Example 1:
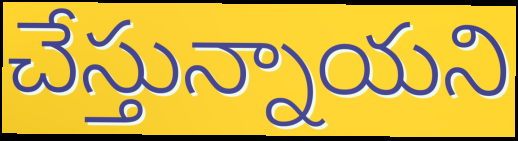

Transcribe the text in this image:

చేస్తున్నాయని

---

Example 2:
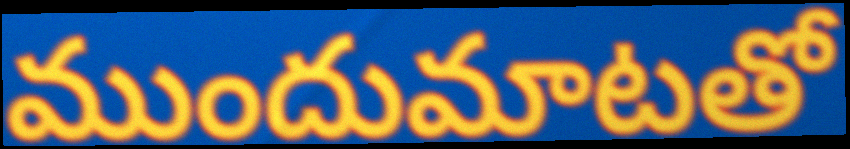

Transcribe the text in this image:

ముందుమాటతో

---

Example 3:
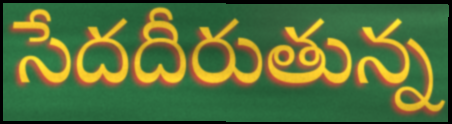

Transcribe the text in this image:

సేదదీరుతున్న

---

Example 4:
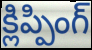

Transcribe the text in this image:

క్లిప్పింగ్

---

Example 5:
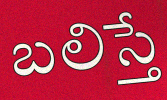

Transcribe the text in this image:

బలిస్తే